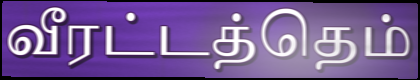
வீரட்டத்தெம்